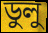
ডুলু